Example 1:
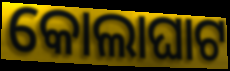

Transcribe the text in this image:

କୋଲାଘାଟ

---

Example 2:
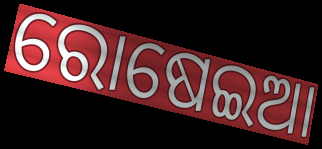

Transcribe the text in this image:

ରୋଷେଇଆ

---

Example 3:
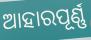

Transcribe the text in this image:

ଆହାରପୂର୍ଣ୍ଣ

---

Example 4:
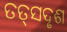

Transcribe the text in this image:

ତତ୍‌ସଦୃଶ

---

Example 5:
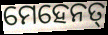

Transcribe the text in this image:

ମେହେନତ୍